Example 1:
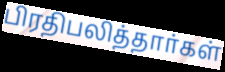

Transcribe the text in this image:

பிரதிபலித்தார்கள்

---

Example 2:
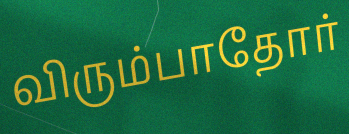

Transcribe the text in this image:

விரும்பாதோர்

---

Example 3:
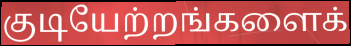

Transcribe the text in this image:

குடியேற்றங்களைக்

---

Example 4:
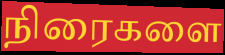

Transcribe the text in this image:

நிரைகளை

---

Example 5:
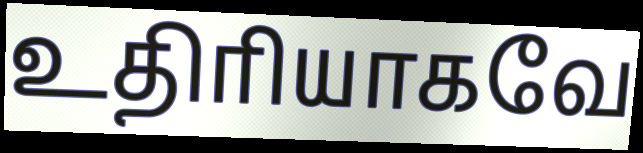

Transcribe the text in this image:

உதிரியாகவே